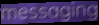
messaging